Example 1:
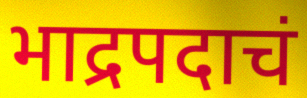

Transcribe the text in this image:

भाद्रपदाचं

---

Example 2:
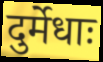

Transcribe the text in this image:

दुर्मेधाः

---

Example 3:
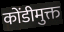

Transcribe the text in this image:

कोंडीमुक्त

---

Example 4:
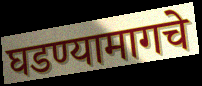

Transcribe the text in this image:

घडण्यामागचे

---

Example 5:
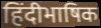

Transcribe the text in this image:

हिंदीभाषिक